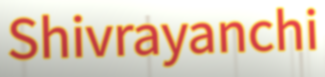
Shivrayanchi